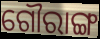
ଗୌରାଙ୍ଗ